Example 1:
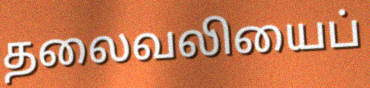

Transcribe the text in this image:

தலைவலியைப்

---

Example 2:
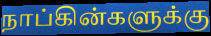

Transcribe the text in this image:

நாப்கின்களுக்கு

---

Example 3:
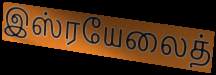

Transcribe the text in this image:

இஸ்ரயேலைத்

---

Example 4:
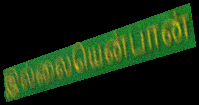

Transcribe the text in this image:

இல்லையென்பான்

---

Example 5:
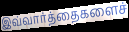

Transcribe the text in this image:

இவ்வார்த்தைகளைச்